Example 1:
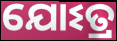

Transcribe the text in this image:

ଯୋଽତ୍ର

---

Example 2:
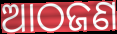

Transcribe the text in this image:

ଆଠଜଣ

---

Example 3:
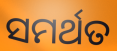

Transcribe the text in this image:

ସମର୍ଥତ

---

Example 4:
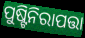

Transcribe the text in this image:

ପୁଷ୍ଟିନିରାପତ୍ତା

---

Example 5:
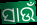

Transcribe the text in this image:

ସାଉଁ